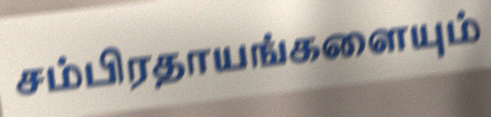
சம்பிரதாயங்களையும்